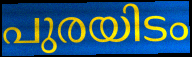
പുരയിടം